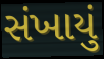
સંખાયું